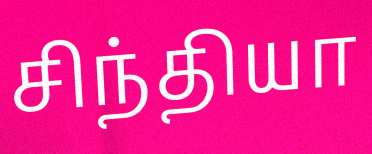
சிந்தியா